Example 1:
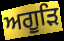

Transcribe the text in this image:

ਅਗੂੜਿ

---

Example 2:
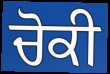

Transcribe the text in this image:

ਚੋਕੀ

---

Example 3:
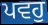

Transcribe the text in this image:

ਪਵਹੁ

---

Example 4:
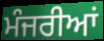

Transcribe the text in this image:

ਮੰਜਰੀਆਂ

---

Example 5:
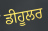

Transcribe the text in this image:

ਡੀਹੂਲਰ